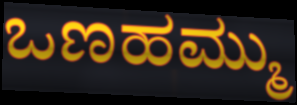
ಒಣಹಮ್ಮು